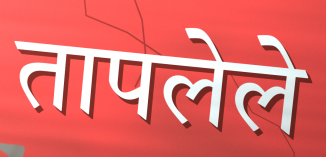
तापलेले